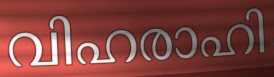
വിഹരാഹി